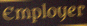
Employer